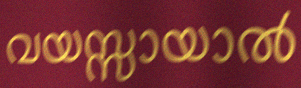
വയസ്സായാൽ